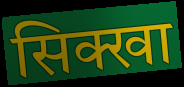
सिक्खा